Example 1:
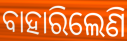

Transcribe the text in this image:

ବାହାରିଲେଣି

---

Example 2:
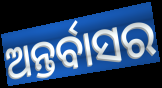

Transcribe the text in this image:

ଅନ୍ତର୍ବାସର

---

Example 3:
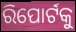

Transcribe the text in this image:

ରିପୋର୍ଟକୁ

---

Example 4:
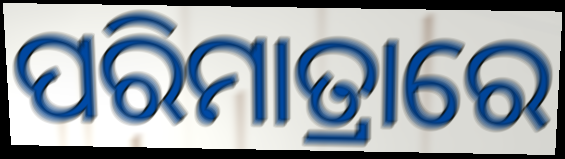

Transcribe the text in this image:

ପରିମାତ୍ରାରେ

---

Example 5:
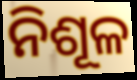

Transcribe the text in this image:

ନିଶୂଳ